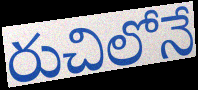
రుచిలోనే